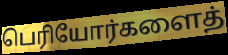
பெரியோர்களைத்